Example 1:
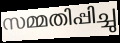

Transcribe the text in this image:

സമ്മതിപ്പിച്ചു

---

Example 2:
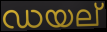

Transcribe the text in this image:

ഡയല്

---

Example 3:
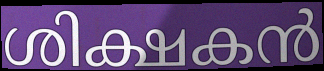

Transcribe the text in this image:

ശിക്ഷകൻ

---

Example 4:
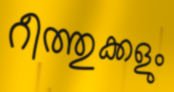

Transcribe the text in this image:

റീത്തുക്കളും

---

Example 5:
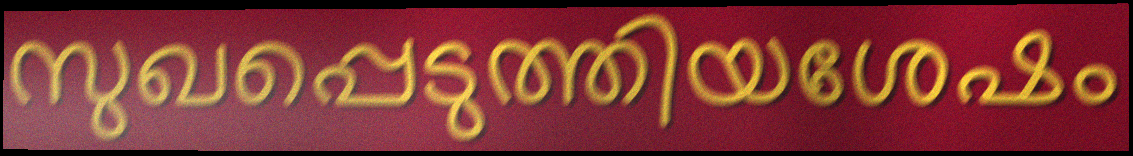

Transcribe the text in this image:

സുഖപ്പെടുത്തിയശേഷം